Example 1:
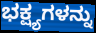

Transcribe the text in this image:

ಭಕ್ಷ್ಯಗಳನ್ನು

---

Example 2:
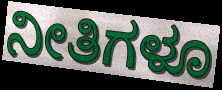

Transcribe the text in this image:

ನೀತಿಗಳೂ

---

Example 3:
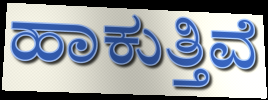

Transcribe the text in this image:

ಹಾಕುತ್ತಿವೆ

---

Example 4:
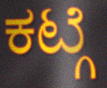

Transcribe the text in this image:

ಕಟ್ಗೆ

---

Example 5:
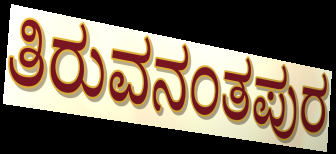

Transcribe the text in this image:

ತಿರುವನಂತಪುರ